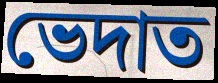
ভেদাত